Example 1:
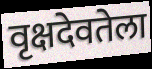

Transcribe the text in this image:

वृक्षदेवतेला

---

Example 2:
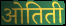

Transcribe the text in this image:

ओतिती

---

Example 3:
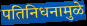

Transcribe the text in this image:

पतिनिधनामुळे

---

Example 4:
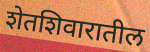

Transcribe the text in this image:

शेतशिवारातील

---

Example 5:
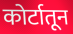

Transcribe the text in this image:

कोर्टातून